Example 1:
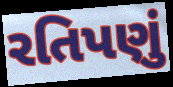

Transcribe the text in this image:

રતિપણું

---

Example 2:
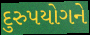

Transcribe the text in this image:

દુરુપયોગને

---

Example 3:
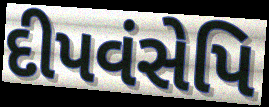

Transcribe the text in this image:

દીપવંસેપિ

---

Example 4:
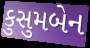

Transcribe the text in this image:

કુસુમબેન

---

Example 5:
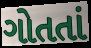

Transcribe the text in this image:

ગોતતાં